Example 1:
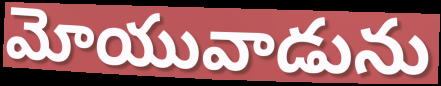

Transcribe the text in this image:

మోయువాడును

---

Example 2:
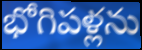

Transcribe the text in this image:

భోగిపళ్లను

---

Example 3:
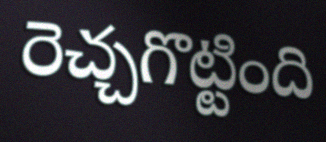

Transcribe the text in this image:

రెచ్చగొట్టింది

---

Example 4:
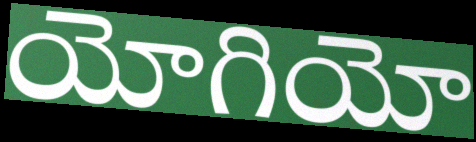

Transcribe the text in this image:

యోగియో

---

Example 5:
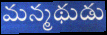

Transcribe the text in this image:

మన్మథుడు